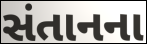
સંતાનના